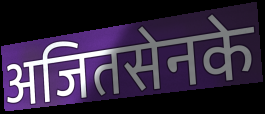
अजितसेनके